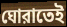
ঘোরাতেই